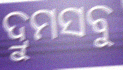
ଦ୍ରୁମସବୁ